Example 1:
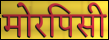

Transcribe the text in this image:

मोरपिसी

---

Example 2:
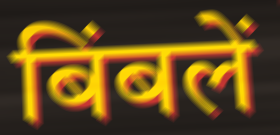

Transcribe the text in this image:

बिंबलें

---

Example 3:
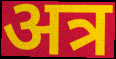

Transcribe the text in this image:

अत्र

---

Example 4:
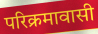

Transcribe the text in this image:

परिक्रमावासी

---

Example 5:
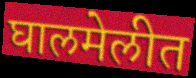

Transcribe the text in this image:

घालमेलीत